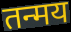
तन्‍मय